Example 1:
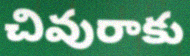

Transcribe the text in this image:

చివురాకు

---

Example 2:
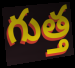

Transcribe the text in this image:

గుత్త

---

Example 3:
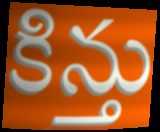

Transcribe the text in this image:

కిన్తు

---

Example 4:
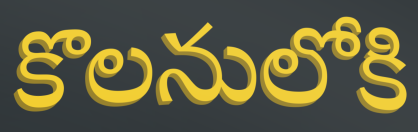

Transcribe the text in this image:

కొలనులోకి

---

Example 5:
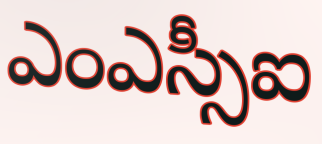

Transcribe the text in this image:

ఎంఎస్సీఐ